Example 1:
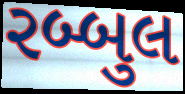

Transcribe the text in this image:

રબ્બુલ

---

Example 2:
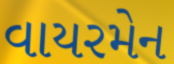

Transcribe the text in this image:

વાયરમેન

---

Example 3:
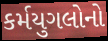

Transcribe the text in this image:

કર્મયુગલોનો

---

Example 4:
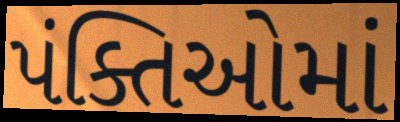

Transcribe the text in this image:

પંક્તિઓમાં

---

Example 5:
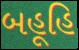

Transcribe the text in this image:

બહૂહિ